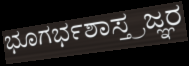
ಭೂಗರ್ಭಶಾಸ್ತ್ರಜ್ಞರ